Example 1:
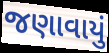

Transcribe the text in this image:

જણાવાયું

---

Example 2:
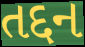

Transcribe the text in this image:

તદ્દન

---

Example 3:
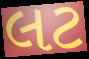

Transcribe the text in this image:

લટ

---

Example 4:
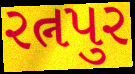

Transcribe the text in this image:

રત્નપુર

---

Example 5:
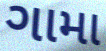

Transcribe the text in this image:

ગામા